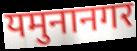
यमुनानगर